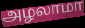
அழலாமா